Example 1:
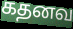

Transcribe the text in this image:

கதனவ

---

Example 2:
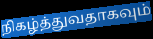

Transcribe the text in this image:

நிகழ்த்துவதாகவும்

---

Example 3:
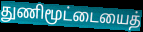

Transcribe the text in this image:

துணிமூட்டையைத்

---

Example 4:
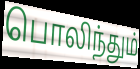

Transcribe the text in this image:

பொலிந்தும்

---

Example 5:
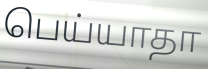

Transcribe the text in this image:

பெய்யாதா